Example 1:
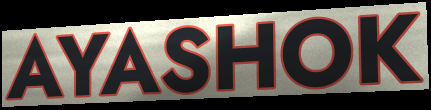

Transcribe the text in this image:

AYASHOK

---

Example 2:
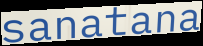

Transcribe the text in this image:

sanatana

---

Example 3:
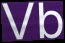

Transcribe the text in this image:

Vb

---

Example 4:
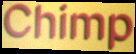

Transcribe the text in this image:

Chimp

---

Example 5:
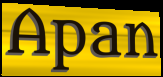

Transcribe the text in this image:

Apan